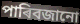
পাৰিবজানো